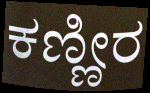
ಕಣ್ಣೀರ